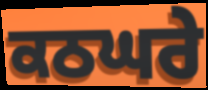
ਕਠਘਰੇ